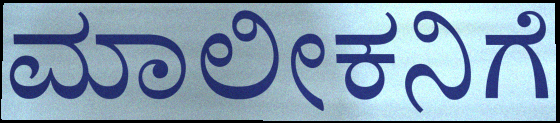
ಮಾಲೀಕನಿಗೆ